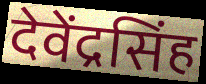
देवेंद्रसिंह